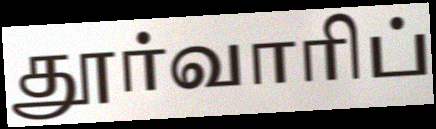
தூர்வாரிப்